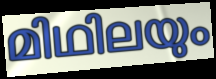
മിഥിലയും